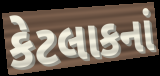
કેટલાકનાં